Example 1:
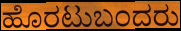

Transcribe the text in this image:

ಹೊರಟುಬಂದರು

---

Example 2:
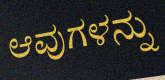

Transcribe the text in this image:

ಆವುಗಳನ್ನು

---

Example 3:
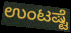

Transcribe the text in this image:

ಉಂಟಷ್ಟೆ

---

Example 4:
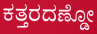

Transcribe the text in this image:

ಕತ್ತರದಣ್ಡೋ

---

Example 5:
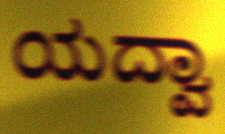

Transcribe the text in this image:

ಯದ್ವಾ